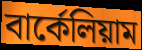
বার্কেলিয়াম